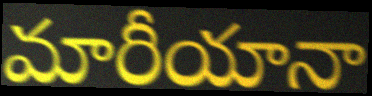
మారీయానా